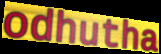
odhutha